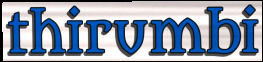
thirumbi